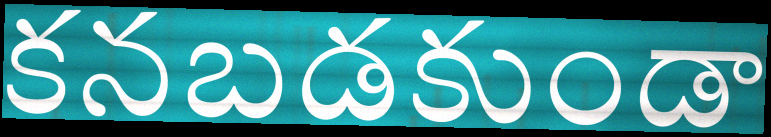
కనబడకుండా